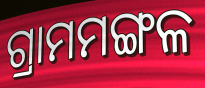
ଗ୍ରାମମଙ୍ଗଳ